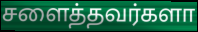
சளைத்தவர்களா